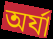
অর্যা